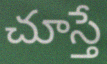
చూస్తే